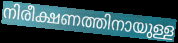
നിരീക്ഷണത്തിനായുള്ള